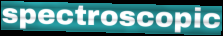
spectroscopic